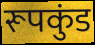
रूपकुंड